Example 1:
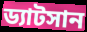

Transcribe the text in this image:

ড্যাটসান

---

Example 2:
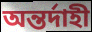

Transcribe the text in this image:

অন্তর্দাহী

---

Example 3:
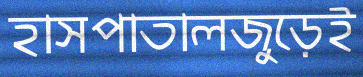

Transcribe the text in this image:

হাসপাতালজুড়েই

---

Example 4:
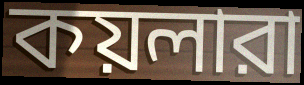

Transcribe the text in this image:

কয়লারা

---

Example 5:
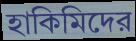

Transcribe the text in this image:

হাকিমিদের